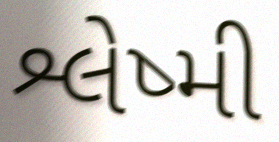
શ્લેષ્મી